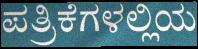
ಪತ್ರಿಕೆಗಳಲ್ಲಿಯ